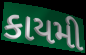
કાયમી